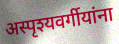
अस्पृश्यवर्गीयांना